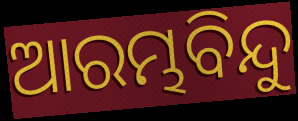
ଆରମ୍ଭବିନ୍ଦୁ